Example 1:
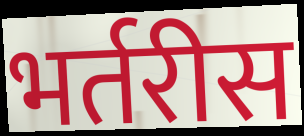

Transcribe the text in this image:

भर्तरीस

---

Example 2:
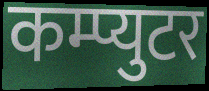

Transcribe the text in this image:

कम्प्युटर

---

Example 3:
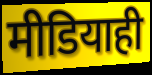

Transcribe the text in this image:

मीडियाही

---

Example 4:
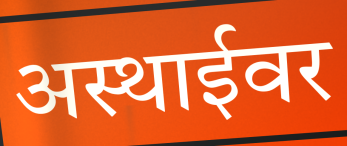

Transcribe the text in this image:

अस्थाईवर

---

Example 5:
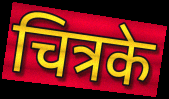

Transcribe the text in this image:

चित्रके